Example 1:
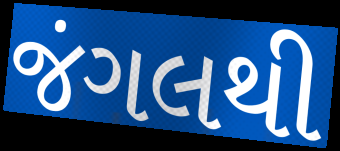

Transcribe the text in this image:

જંગલથી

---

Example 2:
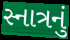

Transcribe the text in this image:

સ્નાત્રનું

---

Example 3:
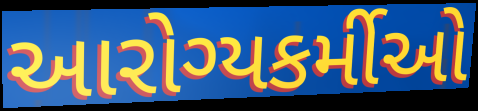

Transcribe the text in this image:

આરોગ્યકર્મીઓ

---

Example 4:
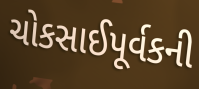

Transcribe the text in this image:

ચોકસાઈપૂર્વકની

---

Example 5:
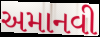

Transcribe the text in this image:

અમાનવી